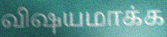
விஷயமாக்க